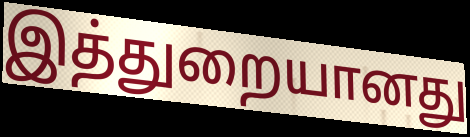
இத்துறையானது